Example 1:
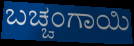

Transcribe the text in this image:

ಬಚ್ಚಂಗಾಯಿ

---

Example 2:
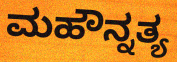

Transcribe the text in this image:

ಮಹೌನ್ನತ್ಯ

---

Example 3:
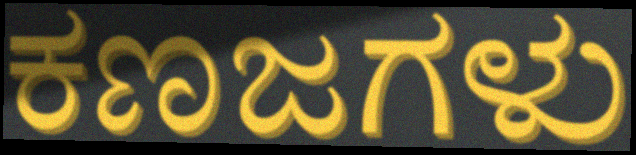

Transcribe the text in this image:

ಕಣಜಗಳು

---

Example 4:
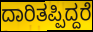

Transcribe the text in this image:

ದಾರಿತಪ್ಪಿದ್ದರೆ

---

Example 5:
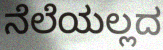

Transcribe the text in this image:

ನೆಲೆಯಲ್ಲದ